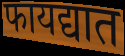
फायद्यात